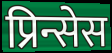
प्रिन्सेस